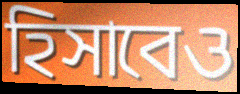
হিসাবেও